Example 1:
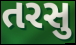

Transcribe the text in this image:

તરસુ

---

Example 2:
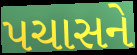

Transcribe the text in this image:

પચાસને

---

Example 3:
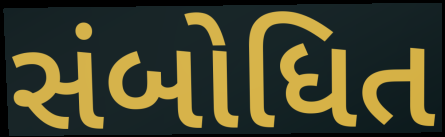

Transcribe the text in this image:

સંબોધિત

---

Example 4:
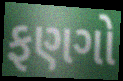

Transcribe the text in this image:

ફણગો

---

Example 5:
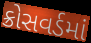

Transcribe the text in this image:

ક્રોસવર્ડમાં